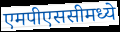
एमपीएससीमध्ये